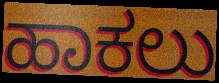
ಹಾಕಲು